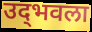
उद्‌भवला